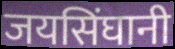
जयसिंघानी